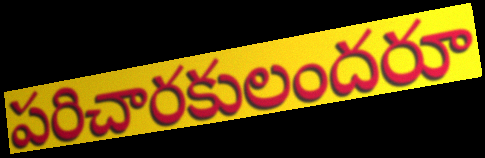
పరిచారకులందరూ